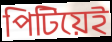
পিটিয়েই